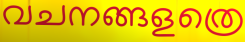
വചനങ്ങളത്രെ